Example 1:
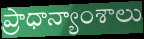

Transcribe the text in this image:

ప్రాధాన్యాంశాలు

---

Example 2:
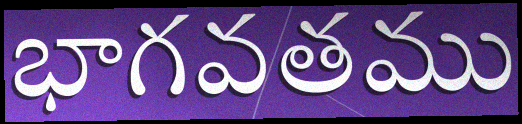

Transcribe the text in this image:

భాగవతము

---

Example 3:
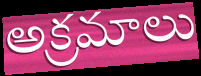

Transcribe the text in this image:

అక్రమాలు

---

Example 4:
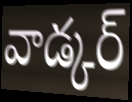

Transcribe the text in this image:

వాడ్కర్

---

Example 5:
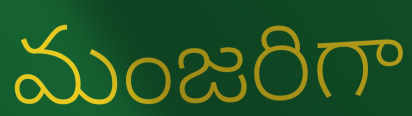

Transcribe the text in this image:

మంజరిగా